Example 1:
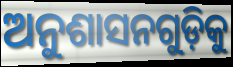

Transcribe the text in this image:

ଅନୁଶାସନଗୁଡ଼ିକୁ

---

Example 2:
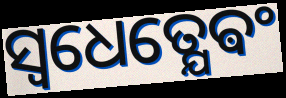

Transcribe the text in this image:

ସ୍ଵଧେତ୍ଯେଵଂ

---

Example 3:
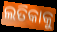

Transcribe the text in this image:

ଲତିକାକୁ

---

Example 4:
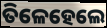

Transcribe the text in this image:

ତିଳେହେଲେ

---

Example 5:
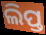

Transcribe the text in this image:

ଲିପ୍ତ